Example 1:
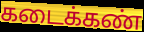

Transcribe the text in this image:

கடைக்கண்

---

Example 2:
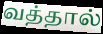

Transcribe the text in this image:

வத்தால்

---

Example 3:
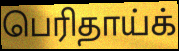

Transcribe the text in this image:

பெரிதாய்க்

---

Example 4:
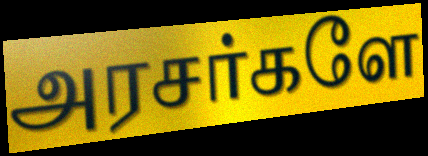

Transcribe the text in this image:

அரசர்களே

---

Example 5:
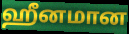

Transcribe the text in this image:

ஹீனமான